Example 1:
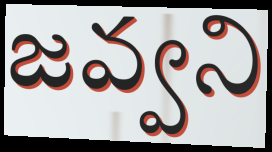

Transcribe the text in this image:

జవ్వని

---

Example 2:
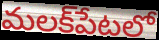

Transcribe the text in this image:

మలక్‌పేటలో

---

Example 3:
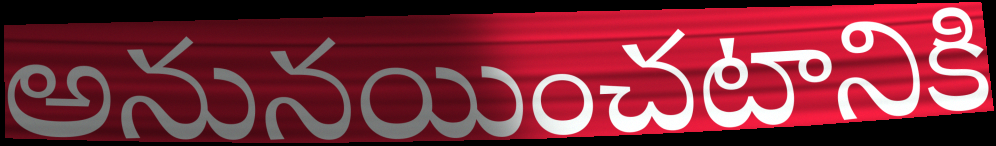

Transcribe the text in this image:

అనునయించటానికి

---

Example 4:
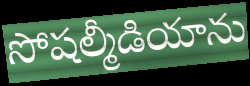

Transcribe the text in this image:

సోషల్మీడియాను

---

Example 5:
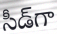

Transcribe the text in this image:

సీడ్‌గా